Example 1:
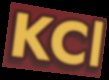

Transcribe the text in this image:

KCl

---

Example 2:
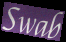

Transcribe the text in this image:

Swab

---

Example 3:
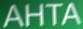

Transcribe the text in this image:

AHTA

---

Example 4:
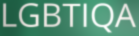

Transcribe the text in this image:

LGBTIQA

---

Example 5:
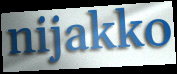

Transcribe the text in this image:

nijakko